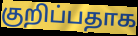
குறிப்பதாக